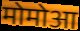
मोमोआ